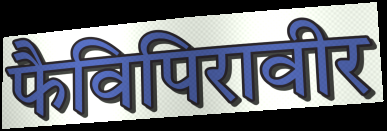
फैविपिरावीर